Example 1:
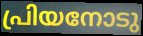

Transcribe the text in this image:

പ്രിയനോടു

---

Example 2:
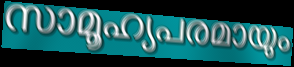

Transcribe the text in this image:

സാമൂഹ്യപരമായും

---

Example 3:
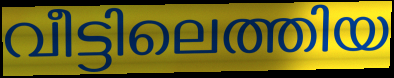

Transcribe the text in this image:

വീട്ടിലെത്തിയ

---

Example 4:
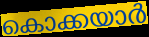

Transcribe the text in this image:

കൊക്കയാർ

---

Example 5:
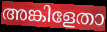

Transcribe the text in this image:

അങ്കിളേതാ